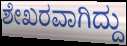
ಶೇಖರವಾಗಿದ್ದು